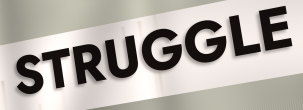
STRUGGLE